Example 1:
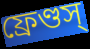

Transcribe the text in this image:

ফ্রেণ্ডস্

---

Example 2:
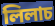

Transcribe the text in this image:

লিলাচ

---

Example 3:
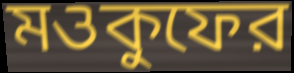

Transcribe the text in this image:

মওকুফের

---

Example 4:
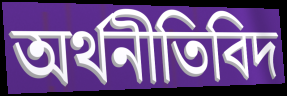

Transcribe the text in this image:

অর্থনীতিবিদ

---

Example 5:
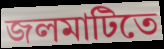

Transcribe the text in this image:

জলমাটিতে